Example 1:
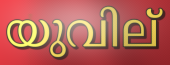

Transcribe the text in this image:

യുവില്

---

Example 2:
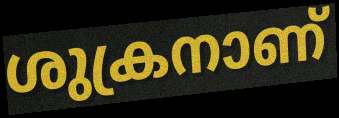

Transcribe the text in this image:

ശുക്രനാണ്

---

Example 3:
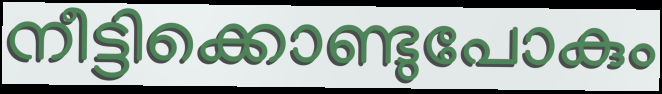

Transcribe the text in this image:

നീട്ടിക്കൊണ്ടുപോകും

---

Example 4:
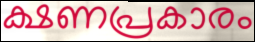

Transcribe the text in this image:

ക്ഷണപ്രകാരം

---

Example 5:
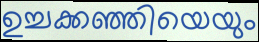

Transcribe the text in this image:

ഉച്ചക്കഞ്ഞിയെയും